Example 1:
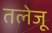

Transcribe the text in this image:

तलेजू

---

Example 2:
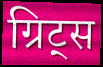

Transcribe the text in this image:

ग्रिट्स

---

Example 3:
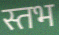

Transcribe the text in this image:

स्तभ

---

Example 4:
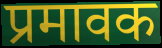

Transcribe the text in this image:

प्रमावक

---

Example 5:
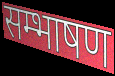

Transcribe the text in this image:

सम्भाषण